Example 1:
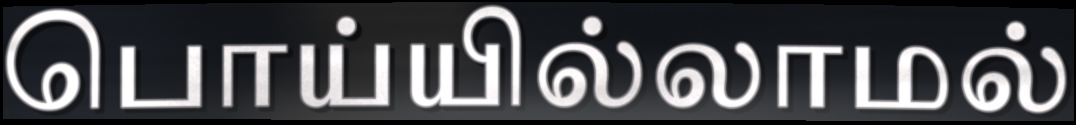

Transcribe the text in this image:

பொய்யில்லாமல்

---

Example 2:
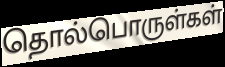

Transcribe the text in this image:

தொல்பொருள்கள்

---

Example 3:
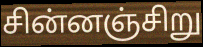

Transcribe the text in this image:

சின்னஞ்சிறு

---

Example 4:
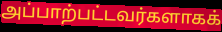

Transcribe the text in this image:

அப்பாற்பட்டவர்களாகக்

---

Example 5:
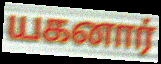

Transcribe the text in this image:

யகனார்